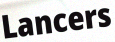
Lancers